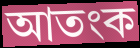
আতংক